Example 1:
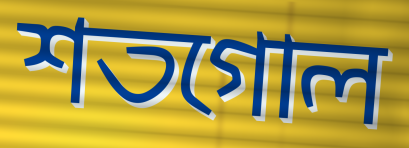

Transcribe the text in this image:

শতগোল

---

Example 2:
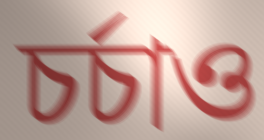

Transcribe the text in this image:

চর্চাও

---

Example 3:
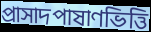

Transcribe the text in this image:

প্রাসাদপাষাণভিত্তি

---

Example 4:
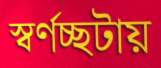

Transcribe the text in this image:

স্বর্ণচ্ছটায়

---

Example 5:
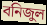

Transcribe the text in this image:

বনিজুল